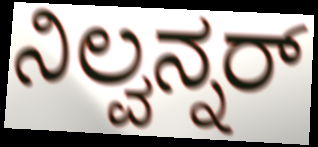
ನಿಲ್ವನ್ನರ್